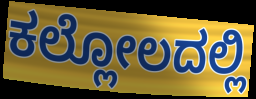
ಕಲ್ಲೋಲದಲ್ಲಿ